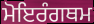
ਮੋਇਰੰਗਥਮ